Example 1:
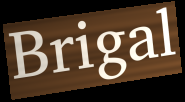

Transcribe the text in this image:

Brigal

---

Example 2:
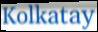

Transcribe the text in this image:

Kolkatay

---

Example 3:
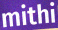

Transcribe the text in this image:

mithi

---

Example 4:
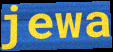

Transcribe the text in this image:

jewa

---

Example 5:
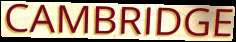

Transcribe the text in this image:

CAMBRIDGE